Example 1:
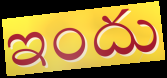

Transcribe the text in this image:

ఇందు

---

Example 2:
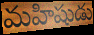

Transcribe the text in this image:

మహిషుడు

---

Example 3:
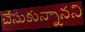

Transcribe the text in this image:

చేసుకున్నానని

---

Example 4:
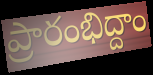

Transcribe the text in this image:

ప్రారంభిద్దాం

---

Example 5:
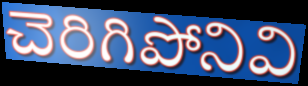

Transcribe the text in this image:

చెరిగిపోనివి